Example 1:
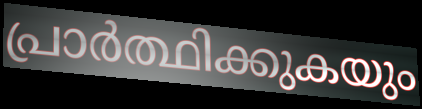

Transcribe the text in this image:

പ്രാർത്ഥിക്കുകയും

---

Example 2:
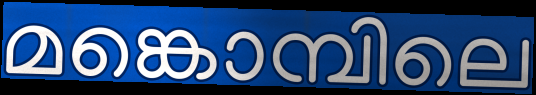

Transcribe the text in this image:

മങ്കൊമ്പിലെ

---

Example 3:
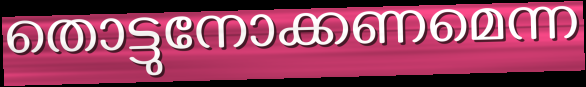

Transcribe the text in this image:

തൊട്ടുനോക്കണമെന്ന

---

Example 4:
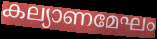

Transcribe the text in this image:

കല്യാണമേഘം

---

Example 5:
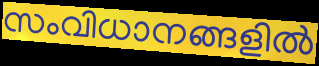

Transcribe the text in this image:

സംവിധാനങ്ങളിൽ